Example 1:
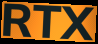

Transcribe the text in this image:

RTX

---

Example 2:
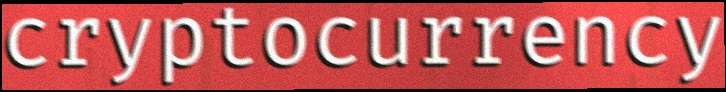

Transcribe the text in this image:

cryptocurrency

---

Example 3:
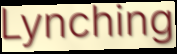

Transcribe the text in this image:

Lynching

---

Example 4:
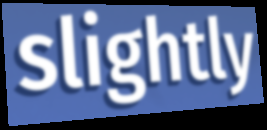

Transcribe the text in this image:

slightly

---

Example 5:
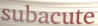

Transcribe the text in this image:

subacute